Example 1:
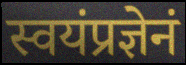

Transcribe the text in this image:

स्वयंप्रज्ञेनं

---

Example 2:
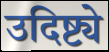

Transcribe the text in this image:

उदिष्ट्ये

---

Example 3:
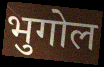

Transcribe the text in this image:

भुगोल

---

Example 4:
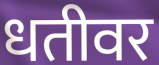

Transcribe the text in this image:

धतीवर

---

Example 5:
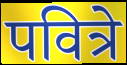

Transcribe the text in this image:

पवित्रे